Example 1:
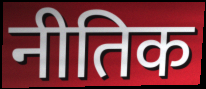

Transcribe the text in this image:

नीतिक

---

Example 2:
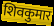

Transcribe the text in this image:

शिवकुमार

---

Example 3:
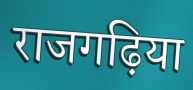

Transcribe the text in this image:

राजगढ़िया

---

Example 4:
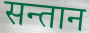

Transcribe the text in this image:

सन्तान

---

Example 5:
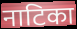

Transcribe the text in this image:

नाटिका